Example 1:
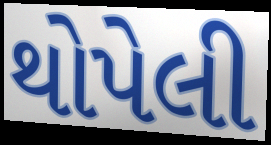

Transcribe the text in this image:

થોપેલી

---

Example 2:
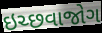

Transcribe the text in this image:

ઇચ્છવાજોગ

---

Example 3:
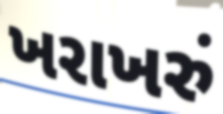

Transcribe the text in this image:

ખરાખરું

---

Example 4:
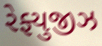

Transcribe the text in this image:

રેફ્યુજીઝ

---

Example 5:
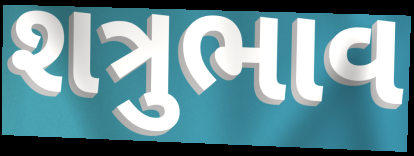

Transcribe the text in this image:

શત્રુભાવ